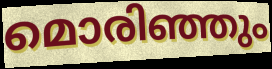
മൊരിഞ്ഞും